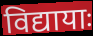
विद्यायाः